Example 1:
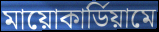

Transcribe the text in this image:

মায়োকার্ডিয়ামে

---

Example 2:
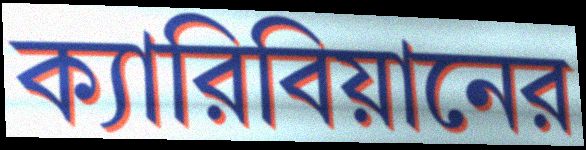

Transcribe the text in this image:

ক্যারিবিয়ানের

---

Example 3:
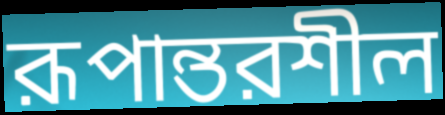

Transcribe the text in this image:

রূপান্তরশীল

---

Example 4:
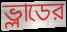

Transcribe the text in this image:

ভ্লাডের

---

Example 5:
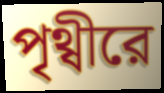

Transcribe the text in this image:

পৃথ্বীরে